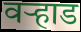
वऱ्हाड